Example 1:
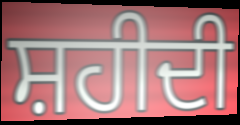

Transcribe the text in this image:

ਸ਼ਹੀਦੀ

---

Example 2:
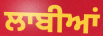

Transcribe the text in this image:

ਲਾਬੀਆਂ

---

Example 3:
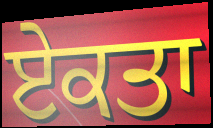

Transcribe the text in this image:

ਏਕਤਾ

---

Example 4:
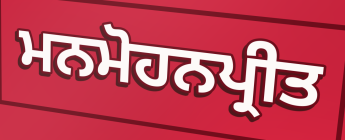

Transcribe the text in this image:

ਮਨਮੋਹਨਪ੍ਰੀਤ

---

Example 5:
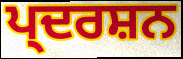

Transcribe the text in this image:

ਪ੍ਦਰਸ਼ਨ